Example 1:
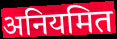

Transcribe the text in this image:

अनियमित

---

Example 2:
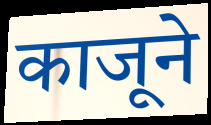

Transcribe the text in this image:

काजूने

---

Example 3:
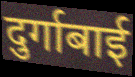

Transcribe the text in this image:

दुर्गाबाई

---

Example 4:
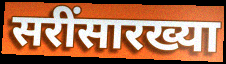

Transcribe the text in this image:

सरींसारख्या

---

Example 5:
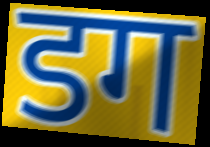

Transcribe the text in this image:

डग